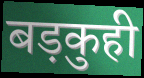
बड़कुही